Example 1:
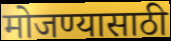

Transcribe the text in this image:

मोजण्यासाठी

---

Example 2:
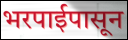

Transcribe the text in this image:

भरपाईपासून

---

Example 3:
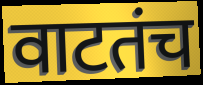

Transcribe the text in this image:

वाटतंच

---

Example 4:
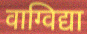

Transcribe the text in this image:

वाग्विद्या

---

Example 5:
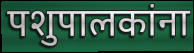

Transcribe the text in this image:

पशुपालकांना